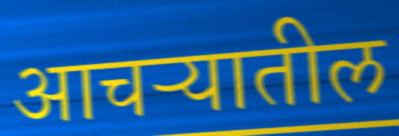
आचऱ्यातील